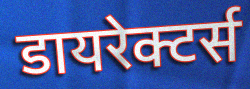
डायरेक्टर्स